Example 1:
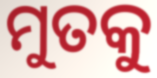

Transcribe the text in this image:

ମୁତକୁ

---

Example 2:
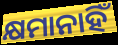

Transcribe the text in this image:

କ୍ଷମାନାହିଁ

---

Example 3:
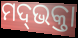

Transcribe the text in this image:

ମଦ୍‌ଭକ୍ତା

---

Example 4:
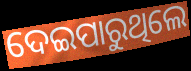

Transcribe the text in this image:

ଦେଇପାରୁଥିଲେ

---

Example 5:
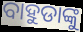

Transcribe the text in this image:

ବାହୁଡାଙ୍କୁ